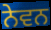
ਨੇਵਨ